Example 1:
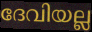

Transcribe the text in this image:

ദേവിയല്ല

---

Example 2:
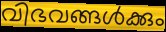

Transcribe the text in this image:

വിഭവങ്ങൾക്കും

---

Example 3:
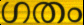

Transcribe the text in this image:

ഗതം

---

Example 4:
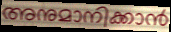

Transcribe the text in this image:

അനുമാനിക്കാൻ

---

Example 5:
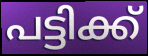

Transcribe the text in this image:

പട്ടിക്ക്